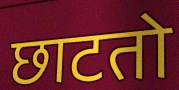
छाटतो